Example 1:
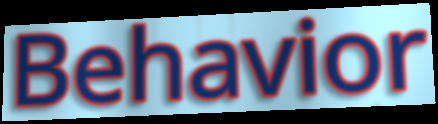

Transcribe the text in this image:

Behavior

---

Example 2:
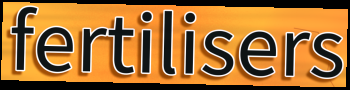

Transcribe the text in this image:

fertilisers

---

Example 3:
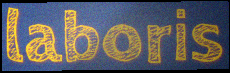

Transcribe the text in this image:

laboris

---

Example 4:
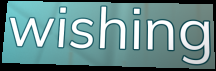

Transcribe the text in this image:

wishing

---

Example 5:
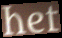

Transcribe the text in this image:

het